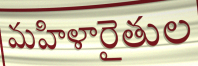
మహిళారైతుల